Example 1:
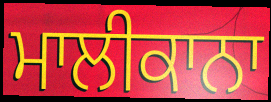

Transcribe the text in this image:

ਮਾਲੀਕਾਨਾ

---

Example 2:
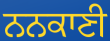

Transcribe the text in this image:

ਨਨਕਾਣੀ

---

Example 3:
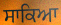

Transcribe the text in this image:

ਸਾਕਿਆ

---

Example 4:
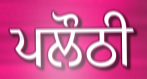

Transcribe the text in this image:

ਪਲੌਠੀ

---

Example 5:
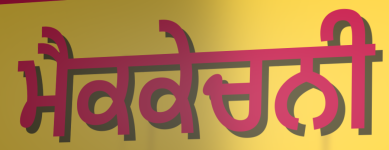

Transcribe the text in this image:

ਮੈਕਕੇਚਨੀ